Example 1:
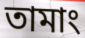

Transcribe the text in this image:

তামাং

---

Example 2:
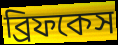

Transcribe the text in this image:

ব্রিফকেস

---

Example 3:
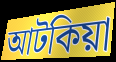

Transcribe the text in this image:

আটকিয়া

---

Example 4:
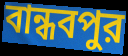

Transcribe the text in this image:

বান্ধবপুর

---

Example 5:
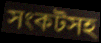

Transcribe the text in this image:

সংকটসহ